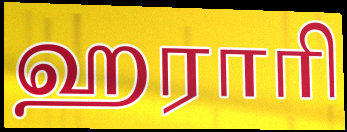
ஹராரி